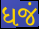
ધજં